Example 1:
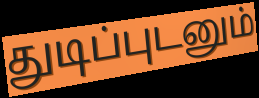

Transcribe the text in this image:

துடிப்புடனும்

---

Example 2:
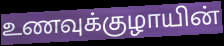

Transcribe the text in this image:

உணவுக்குழாயின்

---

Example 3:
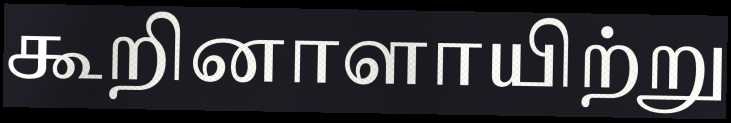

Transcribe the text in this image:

கூறினாளாயிற்று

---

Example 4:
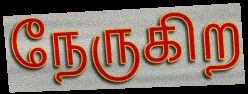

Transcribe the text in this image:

நேருகிற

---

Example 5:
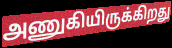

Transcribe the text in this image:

அணுகியிருக்கிறது